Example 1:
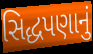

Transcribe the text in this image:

સિદ્ધપણાનું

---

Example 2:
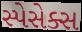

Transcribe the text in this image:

સ્પેસેક્સ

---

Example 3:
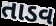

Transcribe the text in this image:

તાડવ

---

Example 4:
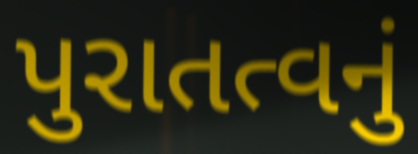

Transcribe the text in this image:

પુરાતત્વનું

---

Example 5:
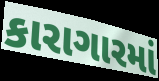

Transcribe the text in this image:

કારાગારમાં